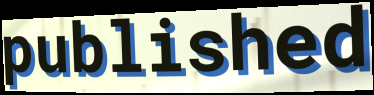
published